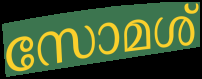
സോമശ്